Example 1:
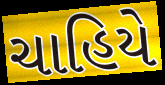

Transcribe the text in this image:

ચાહિયે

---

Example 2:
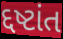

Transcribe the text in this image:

દ્દષ્ટાંત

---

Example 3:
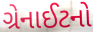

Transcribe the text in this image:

ગ્રેનાઈટનો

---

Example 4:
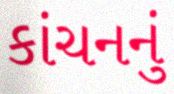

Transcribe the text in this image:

કાંચનનું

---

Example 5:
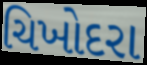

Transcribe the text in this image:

ચિખોદરા